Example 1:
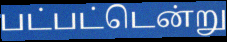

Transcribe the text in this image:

பட்பட்டென்று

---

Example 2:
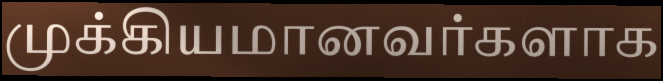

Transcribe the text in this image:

முக்கியமானவர்களாக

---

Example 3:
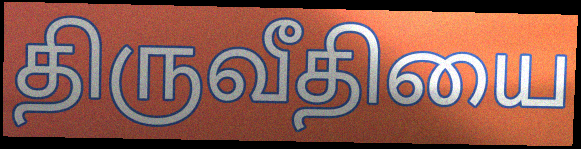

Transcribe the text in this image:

திருவீதியை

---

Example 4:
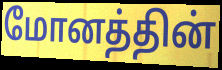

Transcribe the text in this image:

மோனத்தின்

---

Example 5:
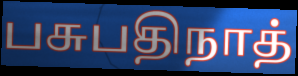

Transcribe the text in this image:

பசுபதிநாத்